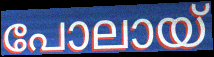
പോലായ്